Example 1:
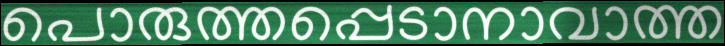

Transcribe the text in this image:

പൊരുത്തപ്പെടാനാവാത്ത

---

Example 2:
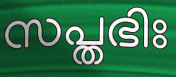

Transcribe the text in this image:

സപ്തഭിഃ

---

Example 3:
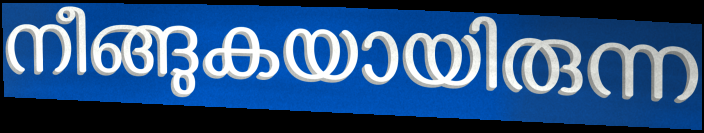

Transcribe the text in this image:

നീങ്ങുകയായിരുന്ന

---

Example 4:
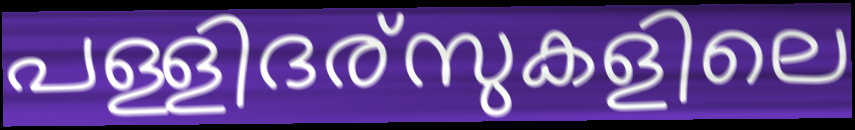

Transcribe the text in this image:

പള്ളിദര്സുകളിലെ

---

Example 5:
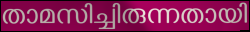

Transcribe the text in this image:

താമസിച്ചിരുന്നതായി